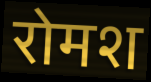
रोमश